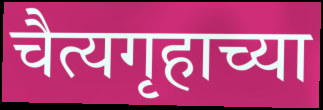
चैत्यगृहाच्या